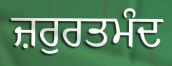
ਜ਼ਰੁਰਤਮੰਦ